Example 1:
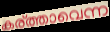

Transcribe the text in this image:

കര്ത്താവെന്ന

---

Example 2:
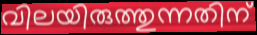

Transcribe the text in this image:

വിലയിരുത്തുന്നതിന്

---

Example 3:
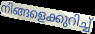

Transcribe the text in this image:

നിങ്ങളെക്കുറിച്ച്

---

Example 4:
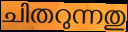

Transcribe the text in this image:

ചിതറുന്നതു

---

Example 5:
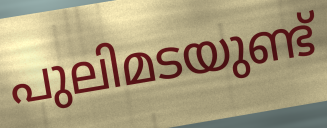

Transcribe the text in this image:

പുലിമടയുണ്ട്